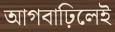
আগবাঢ়িলেই